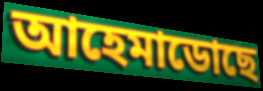
আহেমাডোছে